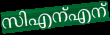
സിഎന്എന്